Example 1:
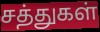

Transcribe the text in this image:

சத்துகள்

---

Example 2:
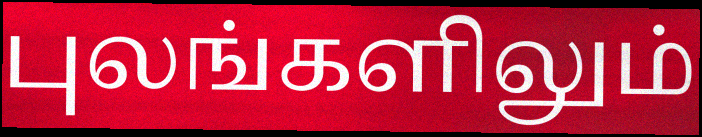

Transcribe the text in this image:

புலங்களிலும்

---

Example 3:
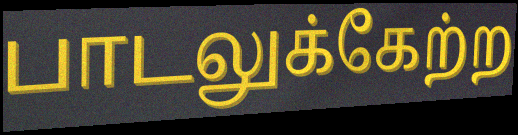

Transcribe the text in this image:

பாடலுக்கேற்ற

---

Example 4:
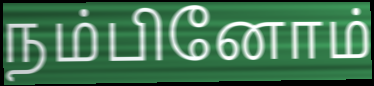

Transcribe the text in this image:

நம்பினோம்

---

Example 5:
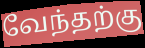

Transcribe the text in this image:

வேந்தற்கு